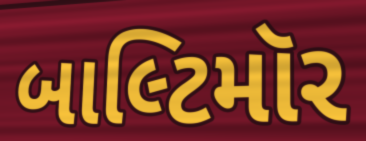
બાલ્ટિમૉર